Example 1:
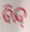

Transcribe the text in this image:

ବିନ୍ଦ୍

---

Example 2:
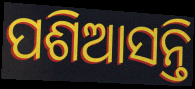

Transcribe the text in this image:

ପଶିଆସନ୍ତି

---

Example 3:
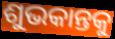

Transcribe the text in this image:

ଶୁଭକାନ୍ତକୁ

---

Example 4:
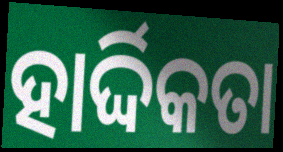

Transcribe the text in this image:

ହାର୍ଦ୍ଦିକତା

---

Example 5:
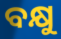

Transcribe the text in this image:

ବକ୍ଷୁ